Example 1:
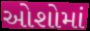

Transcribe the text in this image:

ઓશોમાં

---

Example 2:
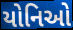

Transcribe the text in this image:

યોનિઓ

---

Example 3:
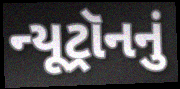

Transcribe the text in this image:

ન્યૂટ્રૉનનું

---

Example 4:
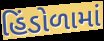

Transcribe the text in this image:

હિંડોળામાં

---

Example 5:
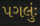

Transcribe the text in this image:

પગલુંઃ